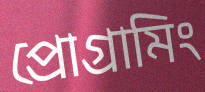
প্রোগ্রামিং